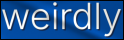
weirdly